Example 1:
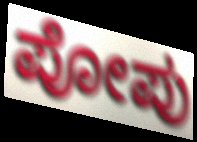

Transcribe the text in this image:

ಪೋಪು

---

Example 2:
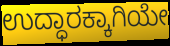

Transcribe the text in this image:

ಉದ್ಧಾರಕ್ಕಾಗಿಯೇ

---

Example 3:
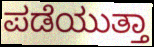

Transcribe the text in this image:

ಪಡೆಯುತ್ತಾ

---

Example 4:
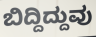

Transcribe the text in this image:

ಬಿದ್ದಿದ್ದುವು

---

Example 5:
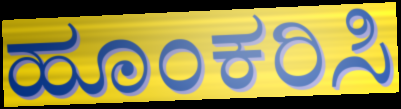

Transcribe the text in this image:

ಹೂಂಕರಿಸಿ